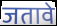
जतावे